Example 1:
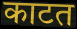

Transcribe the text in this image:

काटत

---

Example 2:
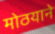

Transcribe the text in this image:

मोठयाने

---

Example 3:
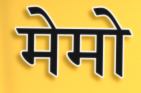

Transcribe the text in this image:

मेमो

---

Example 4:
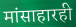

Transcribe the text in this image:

मांसाहारही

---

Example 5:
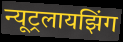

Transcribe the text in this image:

न्यूट्रलायझिंग